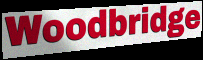
Woodbridge